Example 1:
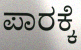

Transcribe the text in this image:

ಪಾರಕ್ಕೆ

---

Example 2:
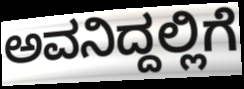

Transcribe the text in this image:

ಅವನಿದ್ದಲ್ಲಿಗೆ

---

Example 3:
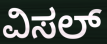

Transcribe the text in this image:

ವಿಸಲ್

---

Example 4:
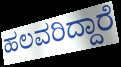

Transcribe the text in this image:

ಹಲವರಿದ್ದಾರೆ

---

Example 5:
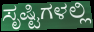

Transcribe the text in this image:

ಸೃಷ್ಟಿಗಳಲ್ಲಿ